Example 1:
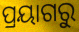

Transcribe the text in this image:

ପ୍ରୟାଗରୁ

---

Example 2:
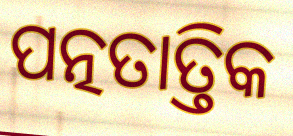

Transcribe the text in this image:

ପତ୍ନତାତ୍ତିକ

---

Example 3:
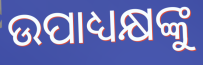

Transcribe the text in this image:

ଉପାଧ୍ୟକ୍ଷଙ୍କୁ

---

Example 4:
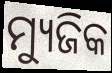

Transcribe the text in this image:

ମ୍ୟୁଜିକ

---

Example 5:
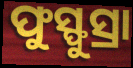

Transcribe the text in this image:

ଫୁସ୍ଫୁସ୍ରା